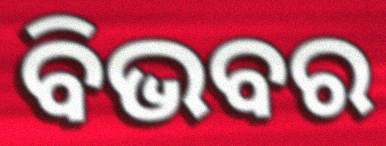
ବିଭବର